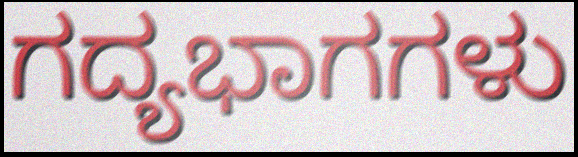
ಗದ್ಯಭಾಗಗಳು